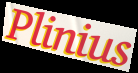
Plinius